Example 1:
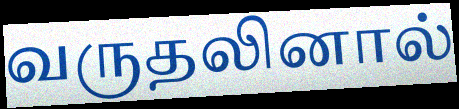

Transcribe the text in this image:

வருதலினால்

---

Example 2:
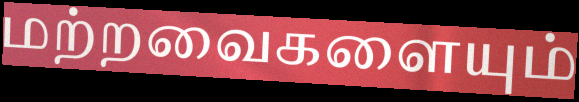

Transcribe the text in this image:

மற்றவைகளையும்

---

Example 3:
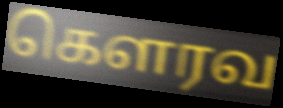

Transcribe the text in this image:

கெளரவ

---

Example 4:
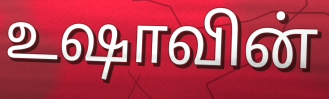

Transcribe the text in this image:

உஷாவின்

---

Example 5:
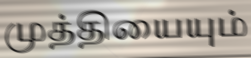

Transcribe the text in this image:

முத்தியையும்